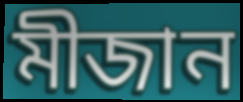
মীজান